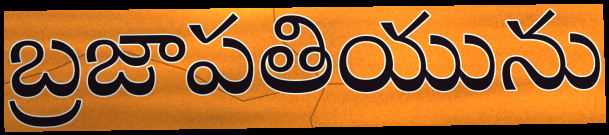
బ్రజాపతియును